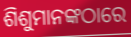
ଶିଶୁମାନଙ୍କଠାରେ